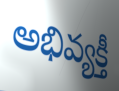
అభివ్యక్తీ